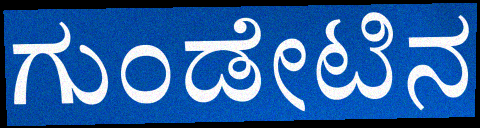
ಗುಂಡೇಟಿನ